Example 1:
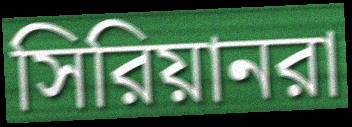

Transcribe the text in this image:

সিরিয়ানরা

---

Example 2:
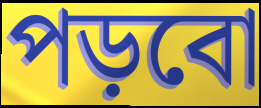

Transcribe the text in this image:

পড়বো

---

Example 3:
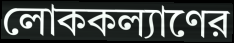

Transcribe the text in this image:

লোককল্যাণের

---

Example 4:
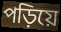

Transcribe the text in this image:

পড়িয়ে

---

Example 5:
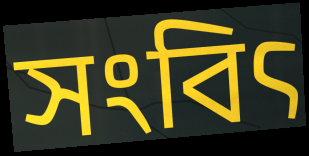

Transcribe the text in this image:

সংবিৎ